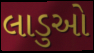
લાડુઓ